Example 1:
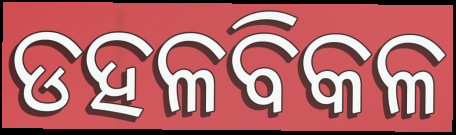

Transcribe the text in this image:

ଡହଳବିକଳ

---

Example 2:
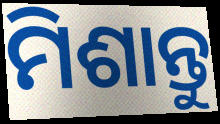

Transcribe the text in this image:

ମିଶାନ୍ତୁ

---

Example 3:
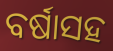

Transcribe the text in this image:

ବର୍ଷାସହ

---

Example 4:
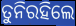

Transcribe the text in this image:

ତୁନିରହିଲେ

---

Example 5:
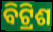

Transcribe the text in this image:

ବିଟ୍ରିଶ